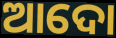
ଆଦୋ